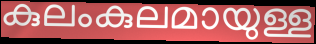
കുലംകുലമായുള്ള